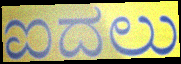
ಐದಲು